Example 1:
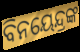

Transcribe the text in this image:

ବିନୟେନ୍ଦ୍ରଙ୍କ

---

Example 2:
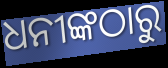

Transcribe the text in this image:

ଧନୀଙ୍କଠାରୁ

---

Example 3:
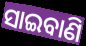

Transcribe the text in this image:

ସାଇବାଣି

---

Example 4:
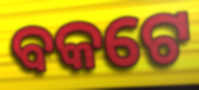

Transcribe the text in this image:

ବକଟେ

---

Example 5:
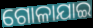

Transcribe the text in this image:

ଗୋଳାଯାଇ